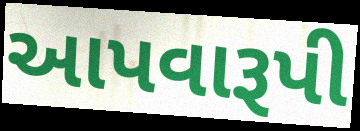
આપવારૂપી